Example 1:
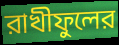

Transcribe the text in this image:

রাখীফুলের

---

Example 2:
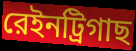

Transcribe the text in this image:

রেইনট্রিগাছ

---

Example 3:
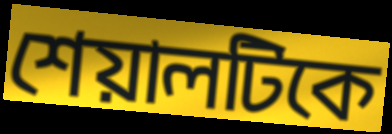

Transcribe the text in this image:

শেয়ালটিকে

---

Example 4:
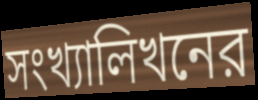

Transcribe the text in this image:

সংখ্যালিখনের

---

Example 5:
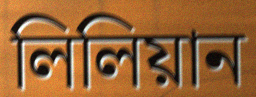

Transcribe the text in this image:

লিলিয়ান